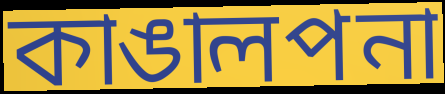
কাঙালপনা